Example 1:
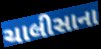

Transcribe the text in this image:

ચાલીસાના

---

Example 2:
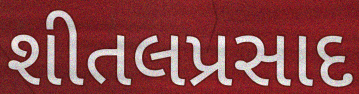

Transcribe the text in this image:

શીતલપ્રસાદ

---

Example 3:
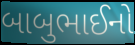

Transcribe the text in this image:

બાબુભાઈનો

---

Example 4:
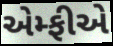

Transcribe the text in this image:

એમ્ફીએ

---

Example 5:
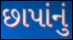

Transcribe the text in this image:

છાપાંનું